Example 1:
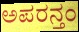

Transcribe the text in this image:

ಅಪರನ್ತಂ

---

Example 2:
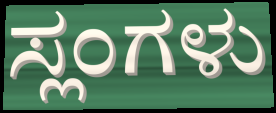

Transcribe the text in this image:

ಸ್ಲಂಗಳು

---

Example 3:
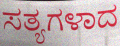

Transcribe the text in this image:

ಸತ್ಯಗಳಾದ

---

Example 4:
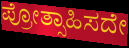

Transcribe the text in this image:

ಪ್ರೋತ್ಸಾಹಿಸದೇ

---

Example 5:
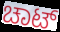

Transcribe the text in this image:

ಚಾಟ್